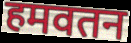
हमवतन